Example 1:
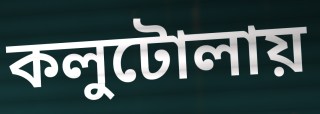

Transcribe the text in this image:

কলুটোলায়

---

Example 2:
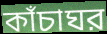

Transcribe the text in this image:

কাঁচাঘর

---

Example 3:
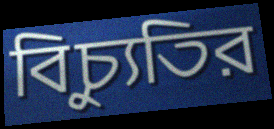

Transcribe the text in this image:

বিচ্যুতির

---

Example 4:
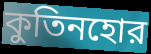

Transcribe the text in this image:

কুতিনহোর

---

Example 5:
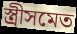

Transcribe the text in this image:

স্ত্রীসমেত